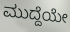
ಮುದ್ದೆಯೇ